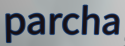
parcha